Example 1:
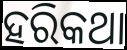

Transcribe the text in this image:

ହରିକଥା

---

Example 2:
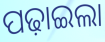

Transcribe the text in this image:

ପଢ଼ାଇଲା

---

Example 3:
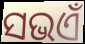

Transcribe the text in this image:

ସଭଏଁ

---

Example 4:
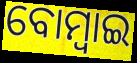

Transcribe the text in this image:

ବୋମ୍ୱାଇ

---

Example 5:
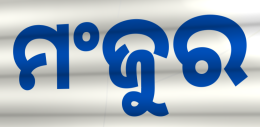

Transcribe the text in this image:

ମଂଜୁର